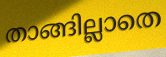
താങ്ങില്ലാതെ